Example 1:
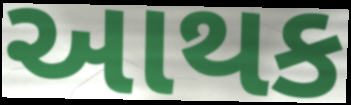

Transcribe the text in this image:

આથક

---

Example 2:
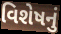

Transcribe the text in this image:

વિશેષનું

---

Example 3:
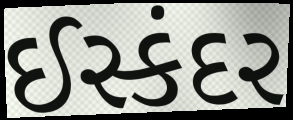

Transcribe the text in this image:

ઈસ્કંદર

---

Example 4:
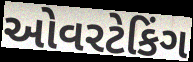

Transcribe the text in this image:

ઓવરટેકિંગ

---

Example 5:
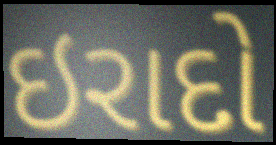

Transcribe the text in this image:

ઇરાદો